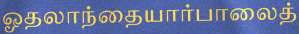
ஓதலாந்தையார்பாலைத்